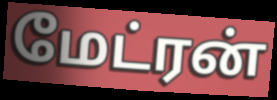
மேட்ரன்